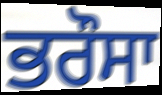
ਭਰੌਸਾ